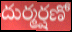
దుర్మర్షణో